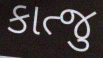
કાત્જુ